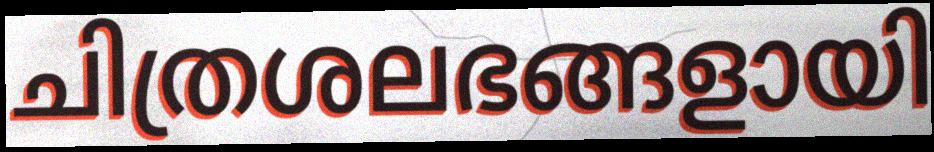
ചിത്രശലഭങ്ങളായി